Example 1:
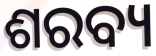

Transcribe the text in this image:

ଶରବ୍ୟ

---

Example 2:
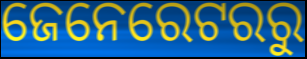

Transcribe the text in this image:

ଜେନେରେଟରରୁ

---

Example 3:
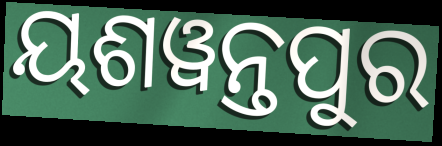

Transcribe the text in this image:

ୟଶୱନ୍ତପୁର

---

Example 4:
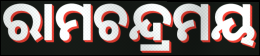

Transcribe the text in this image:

ରାମଚନ୍ଦ୍ରମୟ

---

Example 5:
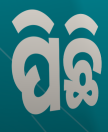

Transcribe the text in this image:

ପିଛି